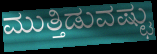
ಮುತ್ತಿಡುವಷ್ಟು